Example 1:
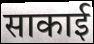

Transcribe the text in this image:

साकाई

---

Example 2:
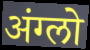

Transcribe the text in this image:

अंग्लो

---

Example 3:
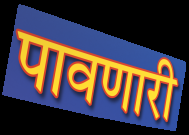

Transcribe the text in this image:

पावणारी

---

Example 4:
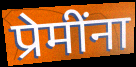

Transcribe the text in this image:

प्रेमींना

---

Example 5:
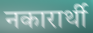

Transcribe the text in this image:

नकारार्थी